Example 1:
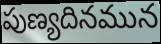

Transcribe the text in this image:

పుణ్యదినమున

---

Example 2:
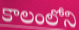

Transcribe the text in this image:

కాలంలోని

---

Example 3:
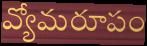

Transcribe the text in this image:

వ్యోమరూపం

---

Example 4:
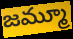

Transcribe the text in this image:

జమ్మూ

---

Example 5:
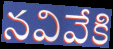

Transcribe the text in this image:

నవివేకి